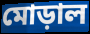
মোড়াল